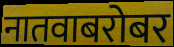
नातवाबरोबर